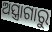
ଅସ୍ତ୍ରାଗାରୁ